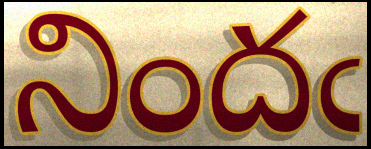
నిందఁ